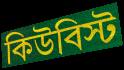
কিউবিস্ট